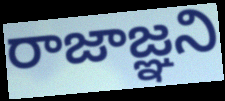
రాజాజ్ఞని